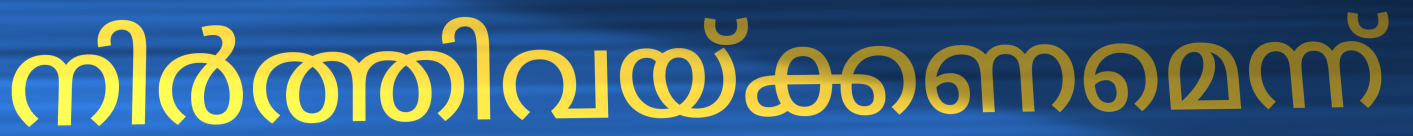
നിർത്തിവയ്ക്കണമെന്ന്